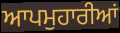
ਆਪਮੁਹਾਰੀਆਂ